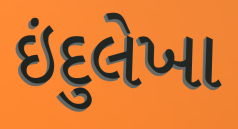
ઇંદુલેખા